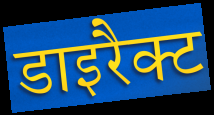
डाइरैक्ट